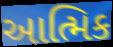
આત્મિક